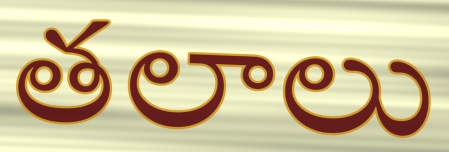
తలాలు